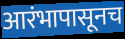
आरंभापासूनच